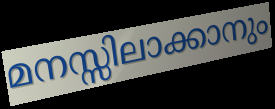
മനസ്സിലാക്കാനും